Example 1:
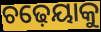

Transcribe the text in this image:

ଚଢ଼େୟାକୁ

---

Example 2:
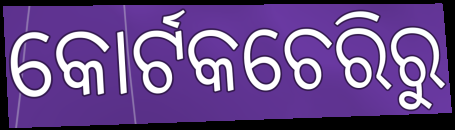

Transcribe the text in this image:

କୋର୍ଟକଚେରିରୁ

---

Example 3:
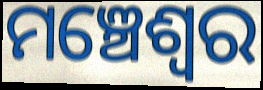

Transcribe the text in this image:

ମଞ୍ଚେଶ୍ଵର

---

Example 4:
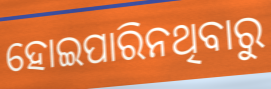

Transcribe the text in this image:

ହୋଇପାରିନଥିବାରୁ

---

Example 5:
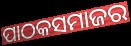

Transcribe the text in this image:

ପାଠକସମାଜର